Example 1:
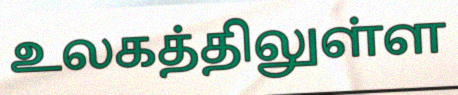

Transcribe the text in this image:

உலகத்திலுள்ள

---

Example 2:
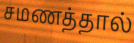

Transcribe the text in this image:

சமணத்தால்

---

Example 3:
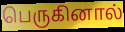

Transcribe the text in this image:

பெருகினால்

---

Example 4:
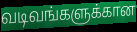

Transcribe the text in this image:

வடிவங்களுக்கான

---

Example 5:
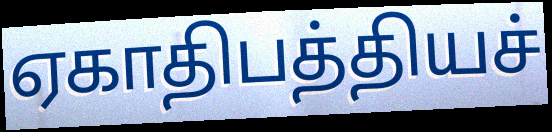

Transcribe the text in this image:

ஏகாதிபத்தியச்